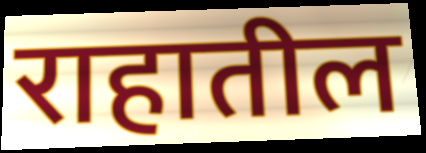
राहातील